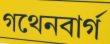
গথেনবার্গ